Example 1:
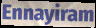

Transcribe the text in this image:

Ennayiram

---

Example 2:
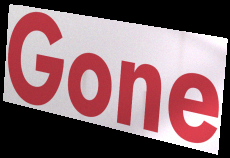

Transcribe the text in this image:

Gone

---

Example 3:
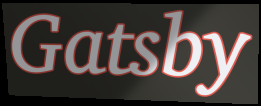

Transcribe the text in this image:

Gatsby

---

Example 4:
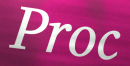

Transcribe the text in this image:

Proc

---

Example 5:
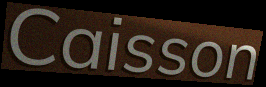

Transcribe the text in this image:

Caisson